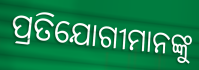
ପ୍ରତିଯୋଗୀମାନଙ୍କୁ